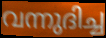
വന്നുദിച്ച